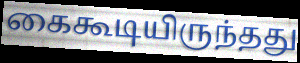
கைகூடியிருந்தது